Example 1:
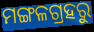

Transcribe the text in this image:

ମଙ୍ଗଳଗ୍ରହରୁ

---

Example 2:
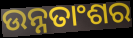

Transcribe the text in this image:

ଉନ୍ନତାଂଶର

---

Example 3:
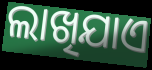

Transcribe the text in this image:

ଲାଖିଯାଏ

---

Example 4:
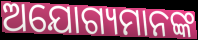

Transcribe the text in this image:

ଅଯୋଗ୍ୟମାନଙ୍କ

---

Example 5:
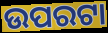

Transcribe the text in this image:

ଉପରଟା